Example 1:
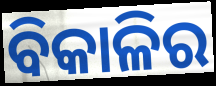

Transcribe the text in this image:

ବିକାଳିର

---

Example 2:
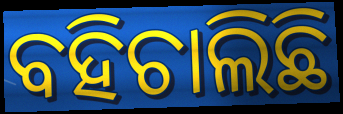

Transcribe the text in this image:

ବହିଚାଲିଛି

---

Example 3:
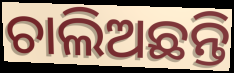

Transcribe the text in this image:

ଚାଲିଅଛନ୍ତି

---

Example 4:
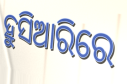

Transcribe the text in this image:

ହୁସିଆରିରେ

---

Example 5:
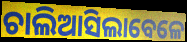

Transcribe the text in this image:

ଚାଲିଆସିଲାବେଳେ